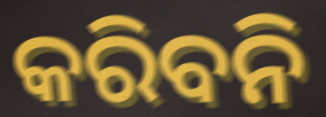
କରିବନି